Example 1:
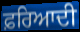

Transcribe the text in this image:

ਫ਼ਰਿਆਦੀ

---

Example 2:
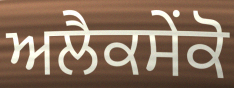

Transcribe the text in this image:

ਅਲੈਕਸੇਂਕੋ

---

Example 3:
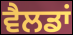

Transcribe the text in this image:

ਵੈਲਡਾਂ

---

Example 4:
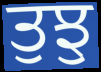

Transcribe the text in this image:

ਤੁਝੁ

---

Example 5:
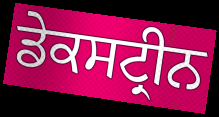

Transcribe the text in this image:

ਡੇਕਸਟ੍ਰੀਨ